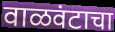
वाळवंटाचा